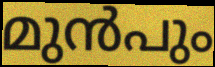
മുൻപും